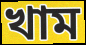
খাম